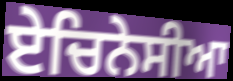
ਏਚਿਨੇਸੀਆ